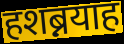
हशब्नयाह